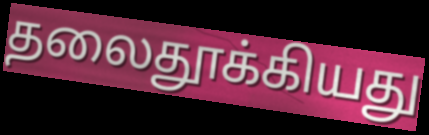
தலைதூக்கியது